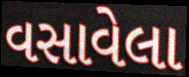
વસાવેલા